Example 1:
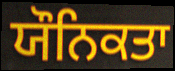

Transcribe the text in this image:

ਯੌਨਿਕਤਾ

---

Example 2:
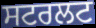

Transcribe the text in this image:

ਸਟਰਲਟ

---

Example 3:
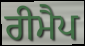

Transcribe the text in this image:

ਰੀਮੈਪ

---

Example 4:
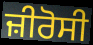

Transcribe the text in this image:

ਜ਼ੀਰੋਸੀ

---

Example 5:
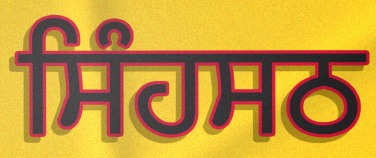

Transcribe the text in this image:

ਸਿੰਹਸਠ